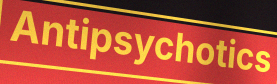
Antipsychotics